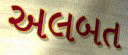
અલબત